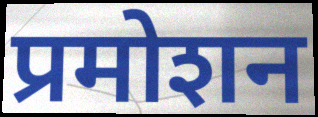
प्रमोशन